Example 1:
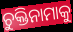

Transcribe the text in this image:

ଚୁକ୍ତିନାମାକୁ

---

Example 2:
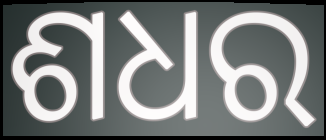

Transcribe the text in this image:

ଶଧର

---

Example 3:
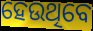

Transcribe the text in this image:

ହେଉଥିବେ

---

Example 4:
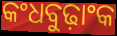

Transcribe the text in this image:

କଂଧବୁଢ଼ାଂକ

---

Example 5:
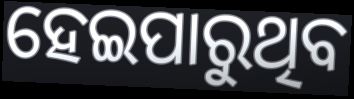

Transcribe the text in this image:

ହେଇପାରୁଥିବ